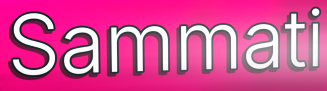
Sammati